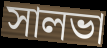
সালভা